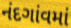
નંદગાંવમાં